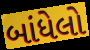
બાંધેલો